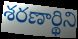
శరణార్థిని